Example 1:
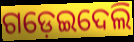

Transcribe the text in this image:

ଗଡ଼େଇଦେଲି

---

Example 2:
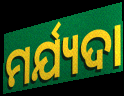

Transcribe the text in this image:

ମର୍ଯ୍ୟଦା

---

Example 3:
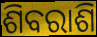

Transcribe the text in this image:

ଶିବରାଶି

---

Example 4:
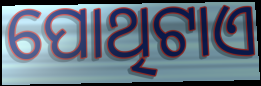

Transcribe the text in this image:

ପୋଥିଟାଏ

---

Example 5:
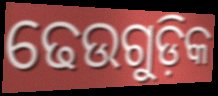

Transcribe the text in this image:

ଢେଉଗୁଡ଼ିକ